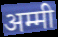
अम्मी